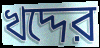
খদ্দের